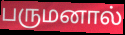
பருமனால்